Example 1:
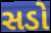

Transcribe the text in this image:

સડો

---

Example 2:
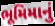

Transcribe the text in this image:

ભૂમિમાનું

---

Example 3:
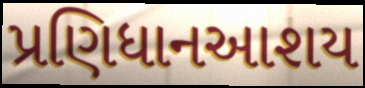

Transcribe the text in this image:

પ્રણિધાનઆશય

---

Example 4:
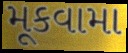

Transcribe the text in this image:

મૂકવામા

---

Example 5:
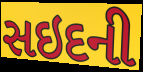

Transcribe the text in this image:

સઇદની